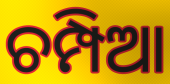
ଚମ୍ପିଆ